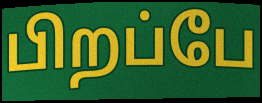
பிறப்பே